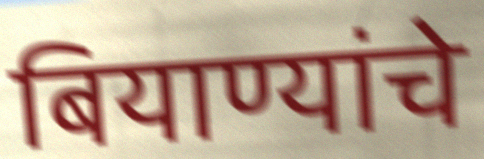
बियाण्यांचे